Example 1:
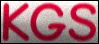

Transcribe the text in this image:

KGS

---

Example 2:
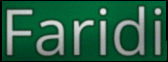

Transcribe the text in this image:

Faridi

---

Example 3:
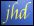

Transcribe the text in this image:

jhd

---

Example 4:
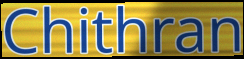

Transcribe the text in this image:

Chithran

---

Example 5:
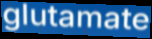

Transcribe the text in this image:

glutamate